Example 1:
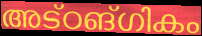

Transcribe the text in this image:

അട്ഠങ്ഗികം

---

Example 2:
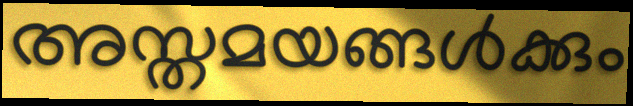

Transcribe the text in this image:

അസ്തമയങ്ങൾക്കും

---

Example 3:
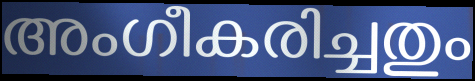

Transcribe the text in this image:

അംഗീകരിച്ചതും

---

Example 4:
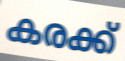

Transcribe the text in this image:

കരക്ക്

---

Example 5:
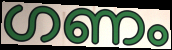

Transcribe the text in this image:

ഗണം